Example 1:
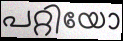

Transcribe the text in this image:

പറ്റിയോ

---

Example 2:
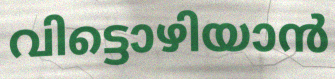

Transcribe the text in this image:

വിട്ടൊഴിയാൻ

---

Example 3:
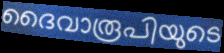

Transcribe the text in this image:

ദൈവാരൂപിയുടെ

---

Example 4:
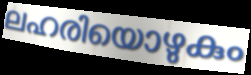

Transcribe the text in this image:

ലഹരിയൊഴുകും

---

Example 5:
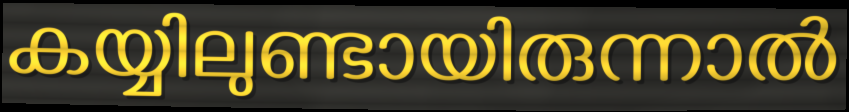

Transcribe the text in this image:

കയ്യിലുണ്ടായിരുന്നാൽ